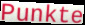
Punkte